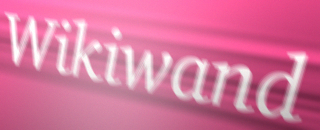
Wikiwand